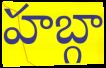
హబ్గా